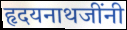
हृदयनाथजींनी